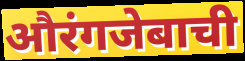
औरंगजेबाची